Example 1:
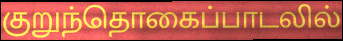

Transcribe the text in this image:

குறுந்தொகைப்பாடலில்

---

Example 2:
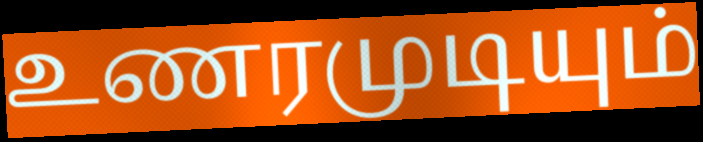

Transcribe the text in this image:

உணரமுடியும்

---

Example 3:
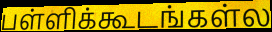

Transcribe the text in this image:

பள்ளிக்கூடங்கள்ல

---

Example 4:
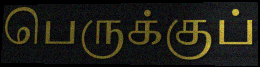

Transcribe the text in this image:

பெருக்குப்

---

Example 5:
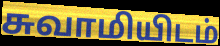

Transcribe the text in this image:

சுவாமியிடம்